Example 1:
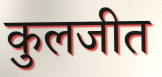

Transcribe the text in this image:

कुलजीत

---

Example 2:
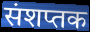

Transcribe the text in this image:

संशप्तक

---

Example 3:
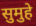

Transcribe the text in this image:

सुमुहे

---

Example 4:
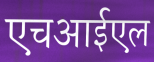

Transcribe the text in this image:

एचआईएल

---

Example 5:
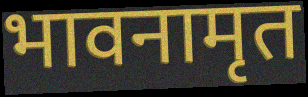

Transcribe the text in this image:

भावनामृत